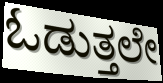
ಓಡುತ್ತಲೇ